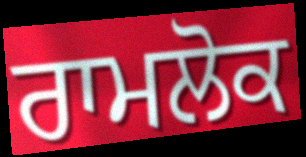
ਰਾਮਲੋਕ